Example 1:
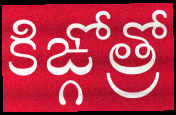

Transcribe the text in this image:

కిఙ్గోత్రో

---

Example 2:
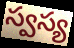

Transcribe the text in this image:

స్వస్య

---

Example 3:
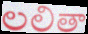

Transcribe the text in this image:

లలితా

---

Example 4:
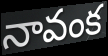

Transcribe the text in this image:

నావంక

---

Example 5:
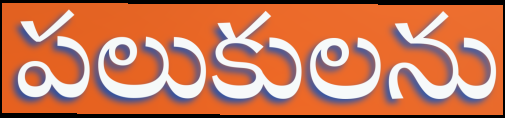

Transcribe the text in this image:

పలుకులను